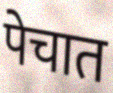
पेचात